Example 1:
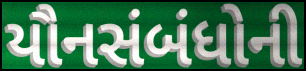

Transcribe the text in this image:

યૌનસંબંધોની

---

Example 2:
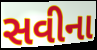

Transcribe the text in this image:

સવીના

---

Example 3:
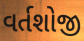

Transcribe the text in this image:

વર્તશોજી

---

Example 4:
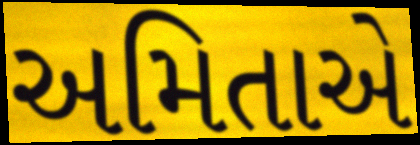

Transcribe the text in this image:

અમિતાએ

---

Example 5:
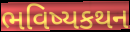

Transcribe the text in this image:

ભવિષ્યકથન